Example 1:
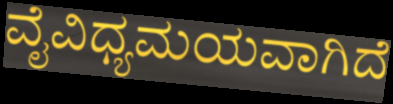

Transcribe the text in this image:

ವೈವಿಧ್ಯಮಯವಾಗಿದೆ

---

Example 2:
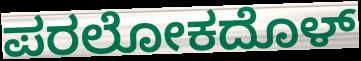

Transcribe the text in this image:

ಪರಲೋಕದೊಳ್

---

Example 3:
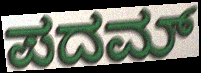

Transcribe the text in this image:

ಪದಮ್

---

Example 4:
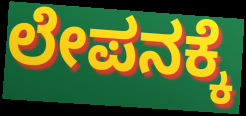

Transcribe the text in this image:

ಲೇಪನಕ್ಕೆ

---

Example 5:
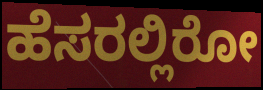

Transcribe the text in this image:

ಹೆಸರಲ್ಲಿರೋ